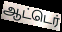
ஆட்டெர்